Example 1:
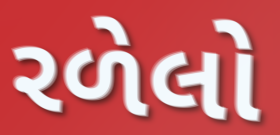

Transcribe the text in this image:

રળેલો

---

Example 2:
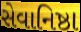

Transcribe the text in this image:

સેવાનિષ્ઠા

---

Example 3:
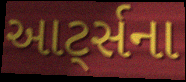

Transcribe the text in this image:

આર્ટ્સના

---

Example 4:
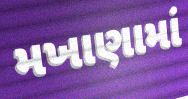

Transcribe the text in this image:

મખાણામાં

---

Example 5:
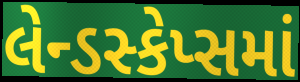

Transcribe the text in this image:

લેન્ડસ્કેપ્સમાં